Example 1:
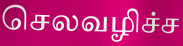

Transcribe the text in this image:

செலவழிச்ச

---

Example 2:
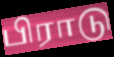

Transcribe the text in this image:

பிராடு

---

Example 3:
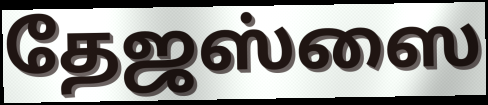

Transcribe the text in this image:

தேஜஸ்ஸை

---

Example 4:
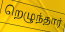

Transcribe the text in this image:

றெழுந்தார்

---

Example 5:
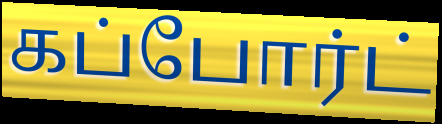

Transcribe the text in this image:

கப்போர்ட்